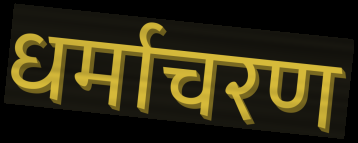
धर्माचरण